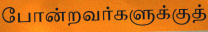
போன்றவர்களுக்குத்